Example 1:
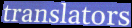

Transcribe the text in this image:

translators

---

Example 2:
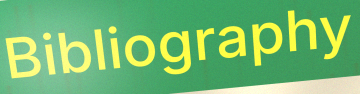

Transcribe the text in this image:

Bibliography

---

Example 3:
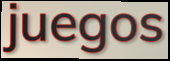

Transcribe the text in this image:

juegos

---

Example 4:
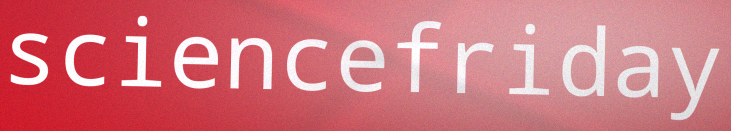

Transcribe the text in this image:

sciencefriday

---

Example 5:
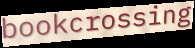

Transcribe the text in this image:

bookcrossing